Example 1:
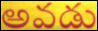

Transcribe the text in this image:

అవడు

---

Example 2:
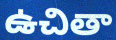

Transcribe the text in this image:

ఉచితా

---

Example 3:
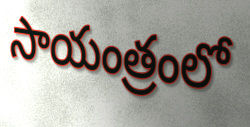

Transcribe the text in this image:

సాయంత్రంలో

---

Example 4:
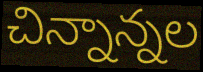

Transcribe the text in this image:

చిన్నాన్నల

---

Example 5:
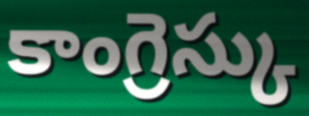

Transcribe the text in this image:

కాంగ్రెస్కు